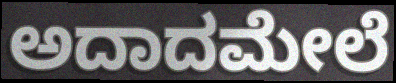
ಅದಾದಮೇಲೆ